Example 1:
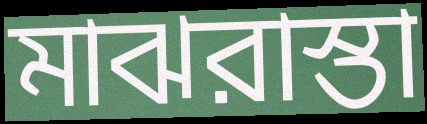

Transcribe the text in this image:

মাঝরাস্তা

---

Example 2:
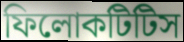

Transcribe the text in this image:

ফিলোকটিটিস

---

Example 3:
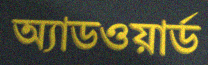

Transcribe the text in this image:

অ্যাডওয়ার্ড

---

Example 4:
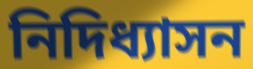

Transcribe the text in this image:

নিদিধ্যাসন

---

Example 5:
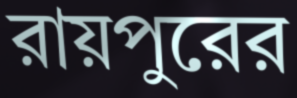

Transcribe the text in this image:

রায়পুরের